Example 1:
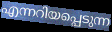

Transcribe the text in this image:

എന്നറിയപ്പെടുന്ന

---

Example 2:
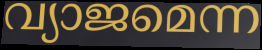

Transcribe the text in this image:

വ്യാജമെന്ന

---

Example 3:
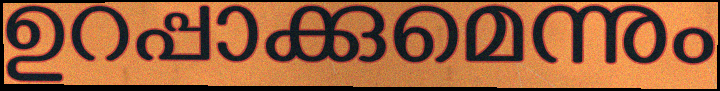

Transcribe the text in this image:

ഉറപ്പാക്കുമെന്നും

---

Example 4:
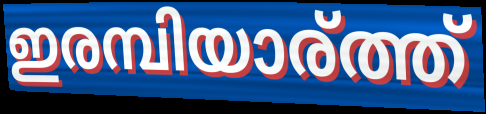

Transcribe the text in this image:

ഇരമ്പിയാര്ത്ത്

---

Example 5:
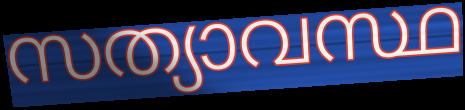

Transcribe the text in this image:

സത്യാവസ്ഥ